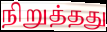
நிறுத்தது